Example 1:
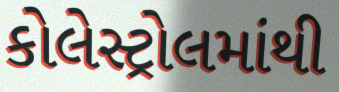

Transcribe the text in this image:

કોલેસ્ટ્રોલમાંથી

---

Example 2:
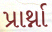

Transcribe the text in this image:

પ્રાર્થ્ના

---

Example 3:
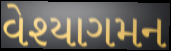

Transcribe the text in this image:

વેશ્યાગમન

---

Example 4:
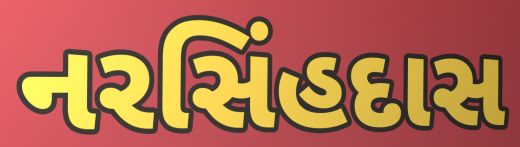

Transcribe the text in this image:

નરસિંહદાસ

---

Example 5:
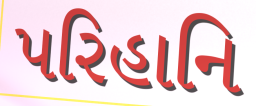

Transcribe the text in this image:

પરિહાનિ